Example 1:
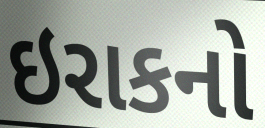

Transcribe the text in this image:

ઇરાકનો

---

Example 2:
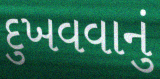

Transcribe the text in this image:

દુખવવાનું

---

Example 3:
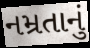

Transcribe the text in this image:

નમ્રતાનું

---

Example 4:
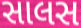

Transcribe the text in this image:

સાલસ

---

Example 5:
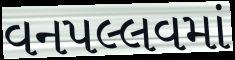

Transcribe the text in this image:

વનપલ્લવમાં